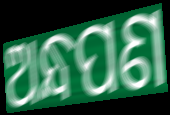
ଅନ୍ଧପଣ